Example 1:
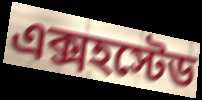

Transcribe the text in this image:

এক্সহস্টেড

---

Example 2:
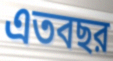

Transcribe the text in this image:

এতবছর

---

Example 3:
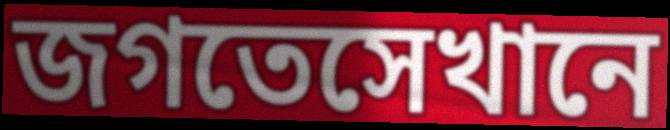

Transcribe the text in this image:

জগতেসেখানে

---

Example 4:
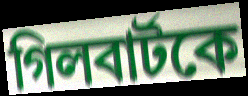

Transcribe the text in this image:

গিলবার্টকে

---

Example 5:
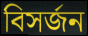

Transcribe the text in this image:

বিসর্জন